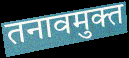
तनावमुक्त